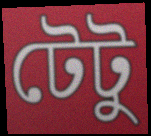
টেটু